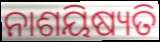
ନାଶୟିଷ୍ୟତି